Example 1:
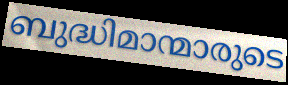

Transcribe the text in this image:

ബുദ്ധിമാന്മാരുടെ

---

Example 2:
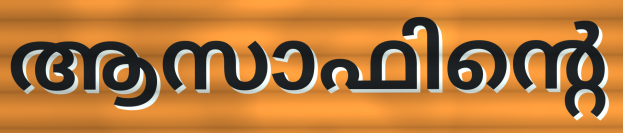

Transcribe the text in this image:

ആസാഫിന്റെ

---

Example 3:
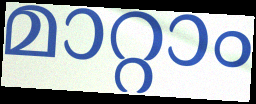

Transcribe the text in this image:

മാറ്റാം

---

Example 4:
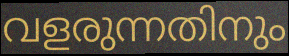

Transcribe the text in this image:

വളരുന്നതിനും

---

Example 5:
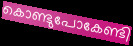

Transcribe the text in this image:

കൊണ്ടുപോകേണ്ടി